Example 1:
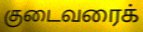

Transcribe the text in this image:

குடைவரைக்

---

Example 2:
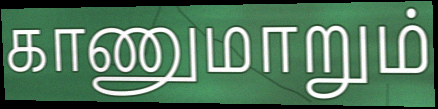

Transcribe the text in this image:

காணுமாறும்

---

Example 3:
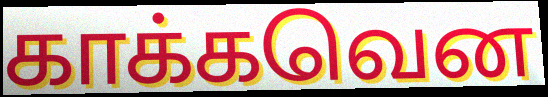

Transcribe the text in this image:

காக்கவென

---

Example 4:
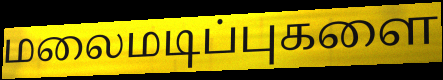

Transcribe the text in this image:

மலைமடிப்புகளை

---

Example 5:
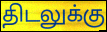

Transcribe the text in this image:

திடலுக்கு